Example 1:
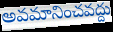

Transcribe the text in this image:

అవమానించవద్దు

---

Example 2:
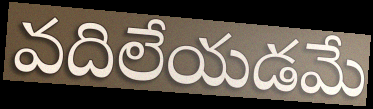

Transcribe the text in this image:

వదిలేయడమే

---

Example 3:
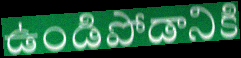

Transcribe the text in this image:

ఉండిపోడానికి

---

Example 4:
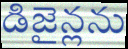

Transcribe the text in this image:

డిజైన్లను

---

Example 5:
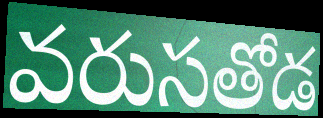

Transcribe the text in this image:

వరుసతోడ